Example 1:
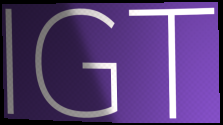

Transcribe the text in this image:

IGT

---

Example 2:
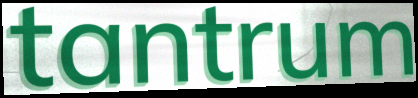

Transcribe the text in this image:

tantrum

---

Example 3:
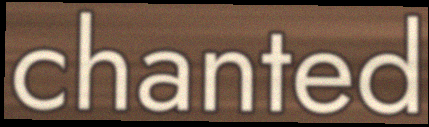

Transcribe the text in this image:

chanted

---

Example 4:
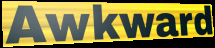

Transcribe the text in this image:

Awkward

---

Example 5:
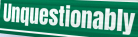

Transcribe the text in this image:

Unquestionably